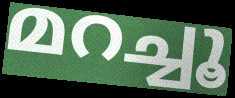
മറച്ചൂ